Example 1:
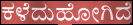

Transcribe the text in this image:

ಕಳೆದುಹೋಗಿದೆ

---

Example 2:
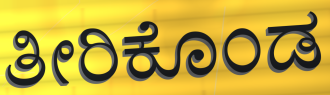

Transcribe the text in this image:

ತೀರಿಕೊಂಡ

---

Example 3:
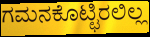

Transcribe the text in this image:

ಗಮನಕೊಟ್ಟಿರಲಿಲ್ಲ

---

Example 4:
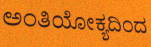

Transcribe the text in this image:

ಅಂತಿಯೋಕ್ಯದಿಂದ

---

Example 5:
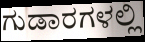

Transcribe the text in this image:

ಗುಡಾರಗಳಲ್ಲಿ